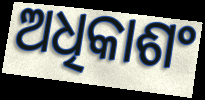
ଅଧିକାଶଂ